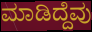
ಮಾಡಿದ್ದೆವು